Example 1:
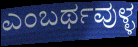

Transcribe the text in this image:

ಎಂಬರ್ಥವುಳ್ಳ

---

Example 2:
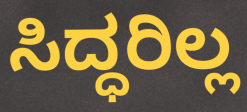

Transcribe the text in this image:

ಸಿದ್ಧರಿಲ್ಲ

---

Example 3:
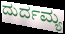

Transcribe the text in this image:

ದುರ್ದಮ್ಯ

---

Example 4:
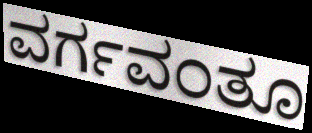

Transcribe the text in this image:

ವರ್ಗವಂತೂ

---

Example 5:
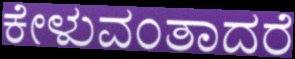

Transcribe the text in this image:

ಕೇಳುವಂತಾದರೆ